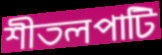
শীতলপাটি